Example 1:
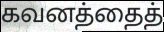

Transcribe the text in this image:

கவனத்தைத்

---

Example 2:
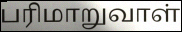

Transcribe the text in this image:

பரிமாறுவாள்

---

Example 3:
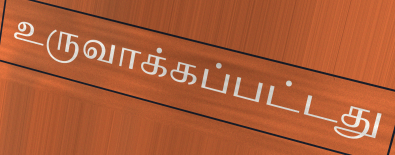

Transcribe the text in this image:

உருவாக்கப்பட்டது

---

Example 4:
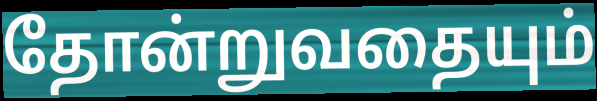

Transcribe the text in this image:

தோன்றுவதையும்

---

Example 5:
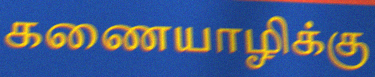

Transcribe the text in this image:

கணையாழிக்கு